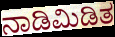
ನಾಡಿಮಿಡಿತ